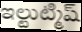
ఇల్టుట్మిష్